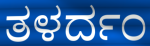
ತಳರ್ದಂ